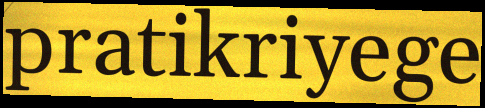
pratikriyege